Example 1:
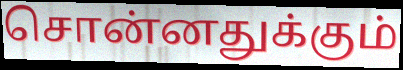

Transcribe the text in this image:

சொன்னதுக்கும்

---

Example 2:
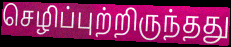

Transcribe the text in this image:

செழிப்புற்றிருந்தது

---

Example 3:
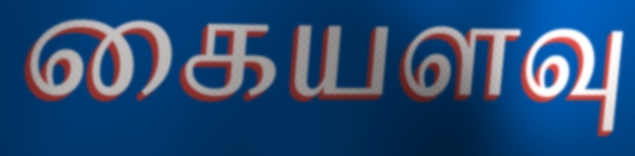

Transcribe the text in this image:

கையளவு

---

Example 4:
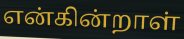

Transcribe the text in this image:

என்கின்றாள்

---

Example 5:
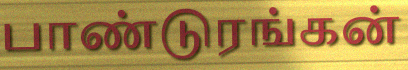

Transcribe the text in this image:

பாண்டுரங்கன்